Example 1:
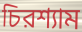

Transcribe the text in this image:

চিরশ্যাম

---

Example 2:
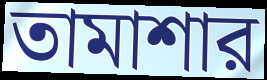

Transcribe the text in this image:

তামাশার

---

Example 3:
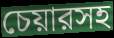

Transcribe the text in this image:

চেয়ারসহ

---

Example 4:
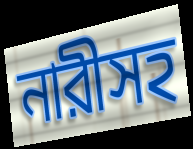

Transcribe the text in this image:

নারীসহ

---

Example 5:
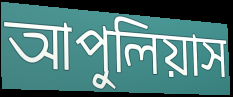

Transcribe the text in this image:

আপুলিয়াস